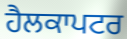
ਹੈਲਕਾਪਟਰ